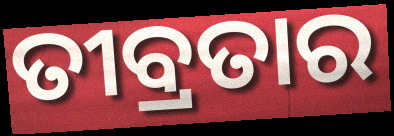
ତୀବ୍ରତାର